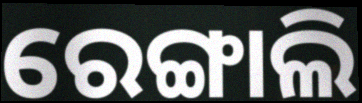
ରେଙ୍ଗାଲି